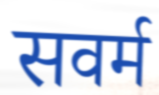
सवर्म